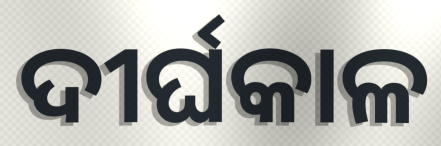
ଦୀର୍ଘକାଳ